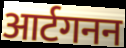
आर्टगनन